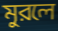
মুরলে